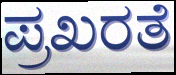
ಪ್ರಖರತೆ